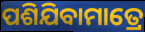
ପଶିଯିବାମାତ୍ରେ